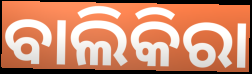
ବାଲିକିରା